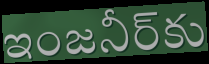
ఇంజనీర్‌కు